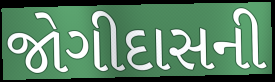
જોગીદાસની